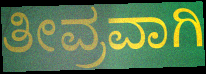
ತೀವ್ರವಾಗಿ